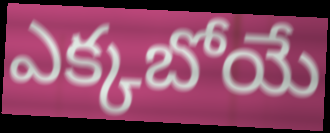
ఎక్కబోయే